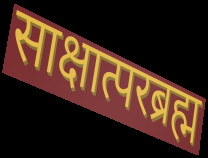
साक्षात्परब्रह्म